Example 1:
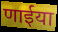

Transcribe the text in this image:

णाईया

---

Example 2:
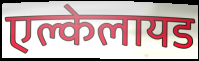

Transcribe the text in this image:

एल्केलायड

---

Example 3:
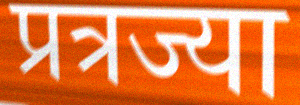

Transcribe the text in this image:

प्रत्रज्या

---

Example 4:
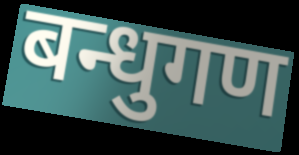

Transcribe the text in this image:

बन्धुगण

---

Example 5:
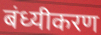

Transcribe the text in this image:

बंध्यीकरण